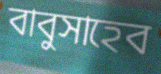
বাবুসাহেব